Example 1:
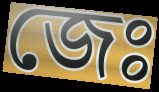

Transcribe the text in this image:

জেঃ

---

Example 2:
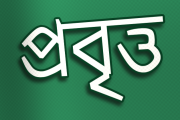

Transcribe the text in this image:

প্রবৃত্ত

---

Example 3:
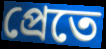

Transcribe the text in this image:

প্রেতে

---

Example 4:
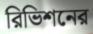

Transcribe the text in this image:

রিভিশনের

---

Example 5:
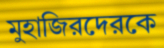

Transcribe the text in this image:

মুহাজিরদেরকে